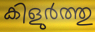
കിളുർത്തു